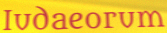
Iudaeorum